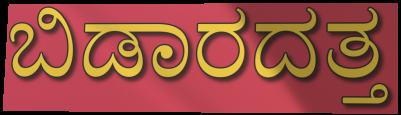
ಬಿಡಾರದತ್ತ